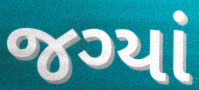
જગ્યાં